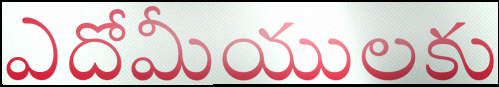
ఎదోమీయులకు